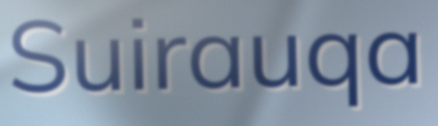
Suirauqa